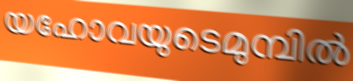
യഹോവയുടെമുമ്പിൽ